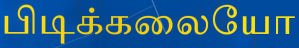
பிடிக்கலையோ